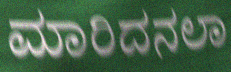
ಮಾರಿದನಲಾ